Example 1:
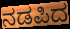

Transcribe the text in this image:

ನಡಪಿದ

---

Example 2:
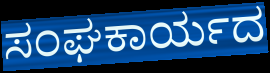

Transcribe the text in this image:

ಸಂಘಕಾರ್ಯದ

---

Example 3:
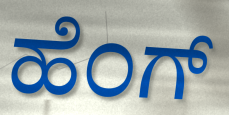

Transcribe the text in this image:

ಹೆಂಗ್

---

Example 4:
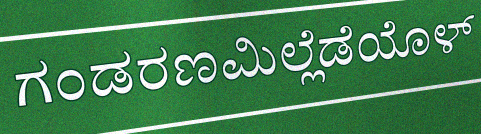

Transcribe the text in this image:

ಗಂಡರಣಮಿಲ್ಲೆಡೆಯೊಳ್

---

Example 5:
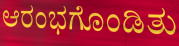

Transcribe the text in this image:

ಆರಂಭಗೊಂಡಿತು